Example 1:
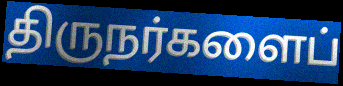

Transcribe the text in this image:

திருநர்களைப்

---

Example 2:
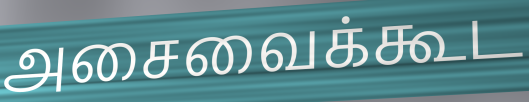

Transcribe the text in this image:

அசைவைக்கூட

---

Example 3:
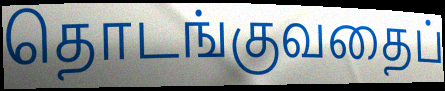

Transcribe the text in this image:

தொடங்குவதைப்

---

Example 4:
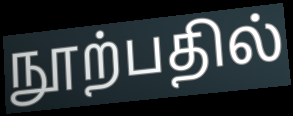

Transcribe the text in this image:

நூற்பதில்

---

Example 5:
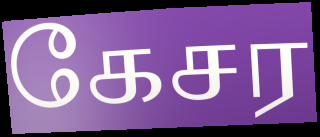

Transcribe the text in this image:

கேசர